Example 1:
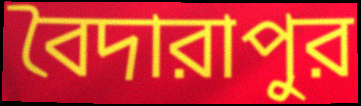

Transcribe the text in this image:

বৈদারাপুর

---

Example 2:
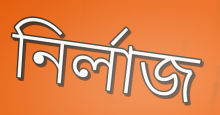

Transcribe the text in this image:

নির্লাজ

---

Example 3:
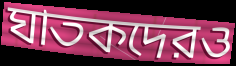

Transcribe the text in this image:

ঘাতকদেরও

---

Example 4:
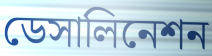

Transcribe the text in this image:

ডেসালিনেশন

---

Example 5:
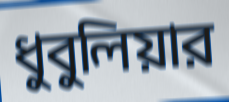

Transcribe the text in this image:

ধুবুলিয়ার